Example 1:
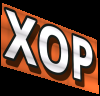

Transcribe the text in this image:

XOP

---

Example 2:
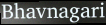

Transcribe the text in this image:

Bhavnagari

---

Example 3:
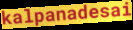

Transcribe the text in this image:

kalpanadesai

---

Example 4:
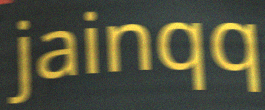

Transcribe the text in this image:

jainqq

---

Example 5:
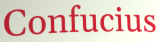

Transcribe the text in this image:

Confucius